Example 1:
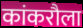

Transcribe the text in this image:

कांकरौला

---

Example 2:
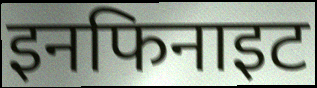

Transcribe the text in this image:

इनफिनाइट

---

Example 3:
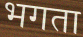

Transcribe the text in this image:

भगता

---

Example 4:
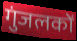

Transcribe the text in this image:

गुंजलकों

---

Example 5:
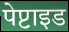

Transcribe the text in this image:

पेप्टाइड